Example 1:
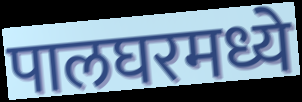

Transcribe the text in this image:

पालघरमध्ये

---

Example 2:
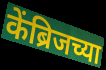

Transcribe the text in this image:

केंब्रिजच्या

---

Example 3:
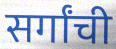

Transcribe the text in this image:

सर्गांची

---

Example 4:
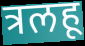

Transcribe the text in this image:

त्रलहू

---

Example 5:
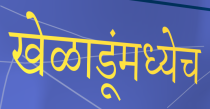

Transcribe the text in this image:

खेळाडूंमध्येच